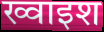
ख्वाइश